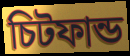
চিটফান্ড